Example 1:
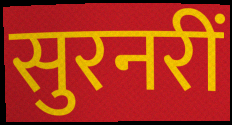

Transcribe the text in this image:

सुरनरीं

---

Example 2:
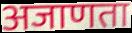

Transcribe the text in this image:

अजाणता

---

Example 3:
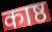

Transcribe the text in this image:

काष्ठ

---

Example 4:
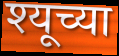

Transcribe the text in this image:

श्यूच्या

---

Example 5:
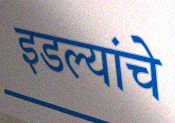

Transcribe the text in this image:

इडल्यांचे